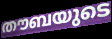
തൗബയുടെ